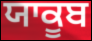
ਯਾਕੂਬ